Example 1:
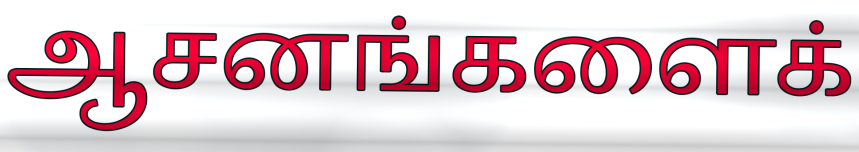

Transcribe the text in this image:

ஆசனங்களைக்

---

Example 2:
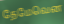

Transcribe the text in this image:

தேமேவென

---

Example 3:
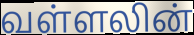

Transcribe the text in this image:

வள்ளலின்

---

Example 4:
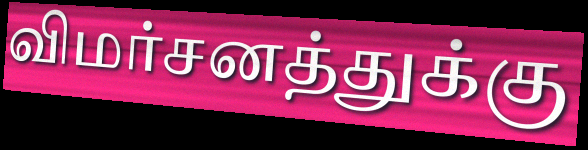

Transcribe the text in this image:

விமர்சனத்துக்கு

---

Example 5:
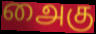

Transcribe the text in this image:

அைகு